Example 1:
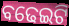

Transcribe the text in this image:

ବଢେଇଟି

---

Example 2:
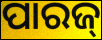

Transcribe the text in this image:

ପାରଜ୍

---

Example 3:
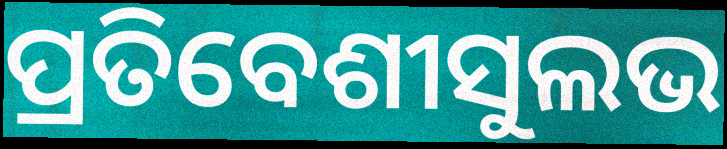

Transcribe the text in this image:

ପ୍ରତିବେଶୀସୁଲଭ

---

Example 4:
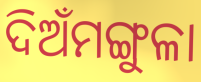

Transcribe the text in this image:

ଦିଅଁମଙ୍ଗୁଳା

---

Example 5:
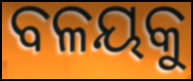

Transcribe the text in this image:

ବଳୟକୁ